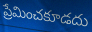
ప్రేమించకూడదు